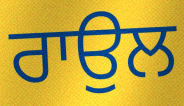
ਰਾਉਲ